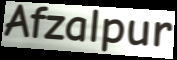
Afzalpur